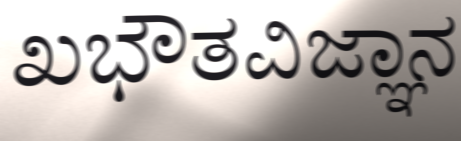
ಖಭೌತವಿಜ್ಞಾನ